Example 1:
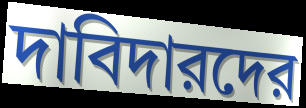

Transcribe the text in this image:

দাবিদারদের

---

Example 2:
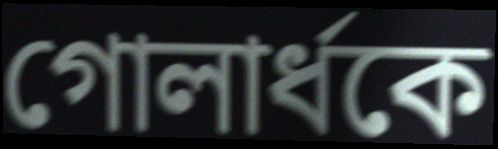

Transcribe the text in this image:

গোলার্ধকে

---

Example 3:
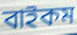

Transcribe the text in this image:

বাইকম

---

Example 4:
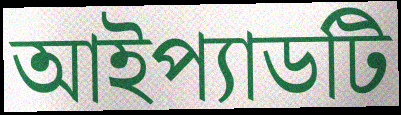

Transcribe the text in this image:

আইপ্যাডটি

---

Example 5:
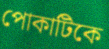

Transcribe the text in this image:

পোকাটিকে